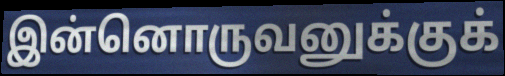
இன்னொருவனுக்குக்